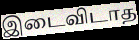
இடைவிடாத